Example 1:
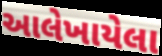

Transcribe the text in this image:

આલેખાયેલા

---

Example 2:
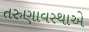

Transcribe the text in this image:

તરુણાવસ્થાએ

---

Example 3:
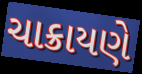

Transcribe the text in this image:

ચાક્રાયણે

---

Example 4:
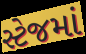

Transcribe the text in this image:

સ્ટેજમાં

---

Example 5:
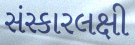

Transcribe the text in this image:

સંસ્કારલક્ષી